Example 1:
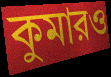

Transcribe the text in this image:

কুমারও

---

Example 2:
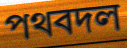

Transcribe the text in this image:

পথবদল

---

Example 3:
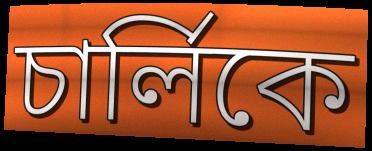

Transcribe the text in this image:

চার্লিকে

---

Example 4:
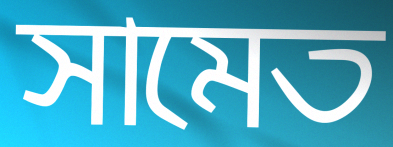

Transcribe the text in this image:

সামেত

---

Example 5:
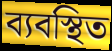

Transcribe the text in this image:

ব্যবস্থিত